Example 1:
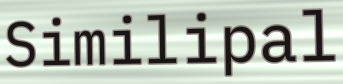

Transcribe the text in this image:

Similipal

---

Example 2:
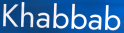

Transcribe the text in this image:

Khabbab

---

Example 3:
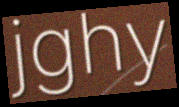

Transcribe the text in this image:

jghy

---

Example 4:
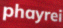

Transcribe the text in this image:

phayrei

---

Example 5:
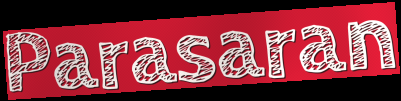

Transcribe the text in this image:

Parasaran